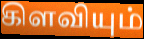
கிளவியும்